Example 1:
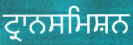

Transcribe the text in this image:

ਟ੍ਰਾਨਸਮਿਸ਼ਨ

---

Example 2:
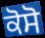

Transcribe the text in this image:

ਕੋਸੋ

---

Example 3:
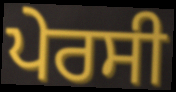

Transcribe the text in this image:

ਪੇਰਸੀ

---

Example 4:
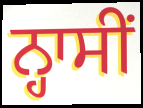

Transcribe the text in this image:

ਨ੍ਹਾਸੀਂ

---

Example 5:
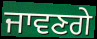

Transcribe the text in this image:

ਜਾਵਣਗੇ